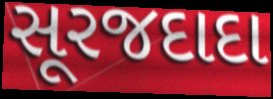
સૂરજદાદા